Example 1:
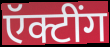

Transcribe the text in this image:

ऍक्टींग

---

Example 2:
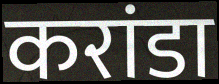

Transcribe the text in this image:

करांडा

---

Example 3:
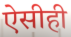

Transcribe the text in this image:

ऐसीही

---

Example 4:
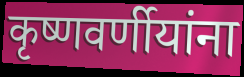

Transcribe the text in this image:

कृष्णवर्णीयांना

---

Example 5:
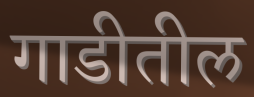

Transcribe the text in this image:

गाडीतील